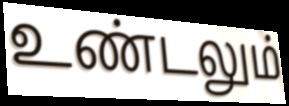
உண்டலும்